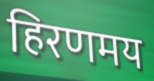
हिरणमय